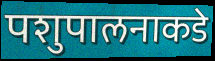
पशुपालनाकडे